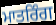
ਮਾਤਰਿੰਗ